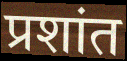
प्रशांत